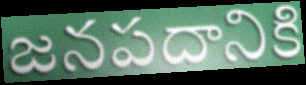
జనపదానికి